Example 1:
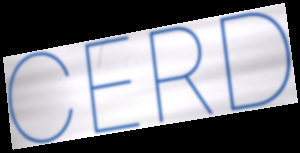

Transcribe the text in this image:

CERD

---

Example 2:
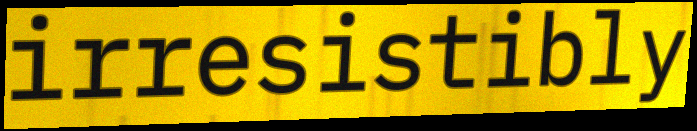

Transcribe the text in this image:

irresistibly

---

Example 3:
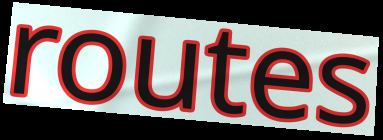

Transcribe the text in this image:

routes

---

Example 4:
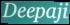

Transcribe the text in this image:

Deepaji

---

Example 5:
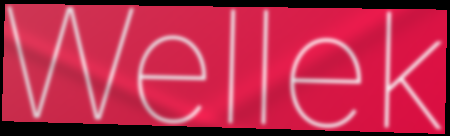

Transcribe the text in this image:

Wellek